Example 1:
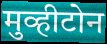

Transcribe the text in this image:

मुव्हीटोन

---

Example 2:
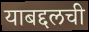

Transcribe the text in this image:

याबद्दलची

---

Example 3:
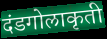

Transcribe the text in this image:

दंडगोलाकृती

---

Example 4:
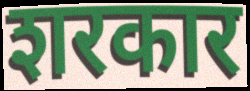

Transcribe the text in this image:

शरकार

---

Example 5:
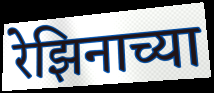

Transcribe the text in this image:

रेझिनाच्या